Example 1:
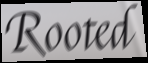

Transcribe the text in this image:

Rooted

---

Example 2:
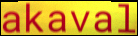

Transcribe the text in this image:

akaval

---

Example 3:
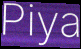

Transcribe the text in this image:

Piya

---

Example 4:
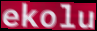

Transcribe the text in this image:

ekolu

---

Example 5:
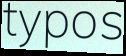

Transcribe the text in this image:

typos